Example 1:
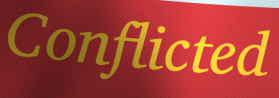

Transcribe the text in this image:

Conflicted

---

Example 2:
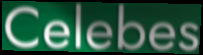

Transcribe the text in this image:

Celebes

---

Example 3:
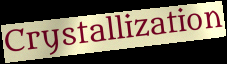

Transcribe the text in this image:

Crystallization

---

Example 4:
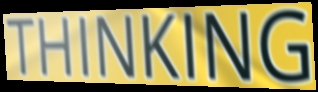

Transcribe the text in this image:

THINKING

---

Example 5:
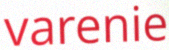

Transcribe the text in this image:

varenie